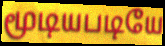
மூடியபடியே